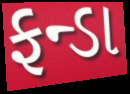
ફન્ડા